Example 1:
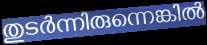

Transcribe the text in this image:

തുടർന്നിരുന്നെങ്കിൽ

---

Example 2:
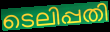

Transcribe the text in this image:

ടെലിപ്പതി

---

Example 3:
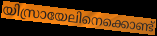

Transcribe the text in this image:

യിസ്രായേലിനെക്കൊണ്ട്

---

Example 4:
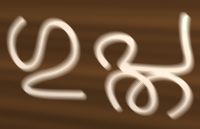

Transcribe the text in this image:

ഗുപ്ത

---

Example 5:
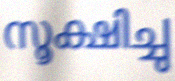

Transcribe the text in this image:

സൂക്ഷിച്ചു